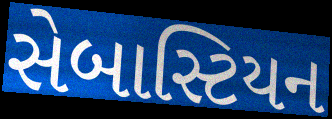
સેબાસ્ટિયન